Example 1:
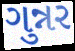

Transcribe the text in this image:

ગુન્નર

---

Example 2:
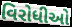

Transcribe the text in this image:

વિરોધીઓ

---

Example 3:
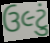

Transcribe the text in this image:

ઉલ્ટું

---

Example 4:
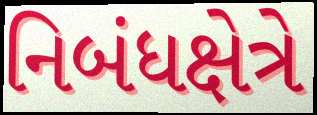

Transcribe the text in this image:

નિબંધક્ષેત્રે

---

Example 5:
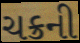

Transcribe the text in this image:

ચક્રની